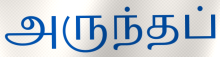
அருந்தப்